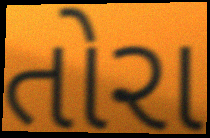
તોરા